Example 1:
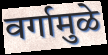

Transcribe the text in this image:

वर्गामुळे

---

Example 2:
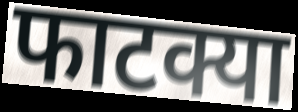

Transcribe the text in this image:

फाटक्या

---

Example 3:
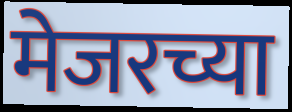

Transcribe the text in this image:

मेजरच्या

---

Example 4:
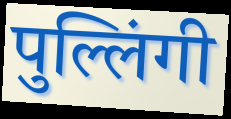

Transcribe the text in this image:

पुल्लिंगी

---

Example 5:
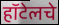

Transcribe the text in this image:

हॉटेलचे